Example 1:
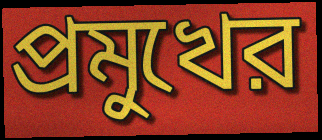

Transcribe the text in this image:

প্রমুখের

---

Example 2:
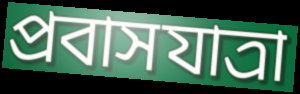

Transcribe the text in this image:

প্রবাসযাত্রা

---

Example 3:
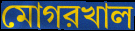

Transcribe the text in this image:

মোগরখাল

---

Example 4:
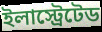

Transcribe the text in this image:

ইলাস্ট্রেটেড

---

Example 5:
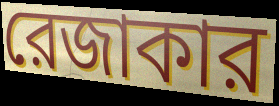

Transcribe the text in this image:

রেজাকার